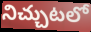
నిచ్చుటలో